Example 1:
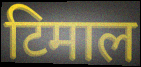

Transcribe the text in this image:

टिमाल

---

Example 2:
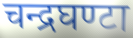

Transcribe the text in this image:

चन्द्रघण्टा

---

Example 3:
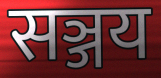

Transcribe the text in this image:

सञ्जय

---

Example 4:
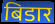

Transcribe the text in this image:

बिडार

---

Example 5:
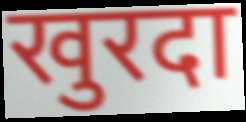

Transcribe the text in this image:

खुरदा